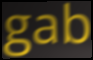
gab